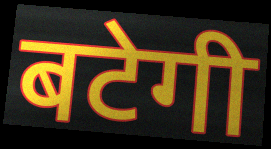
बटेगी